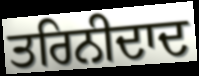
ਤਰਿਨੀਦਾਦ